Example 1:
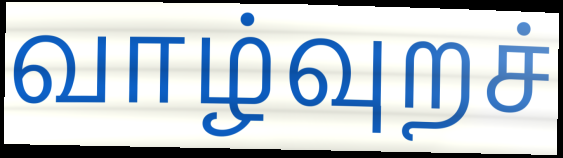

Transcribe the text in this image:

வாழ்வுறச்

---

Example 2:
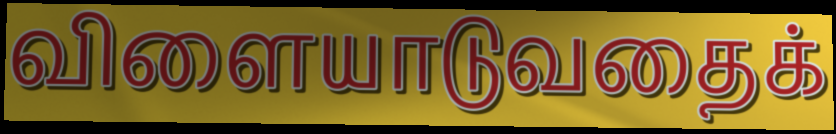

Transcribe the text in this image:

விளையாடுவதைக்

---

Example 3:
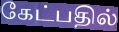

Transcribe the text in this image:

கேட்பதில்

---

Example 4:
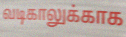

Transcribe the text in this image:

வடிகாலுக்காக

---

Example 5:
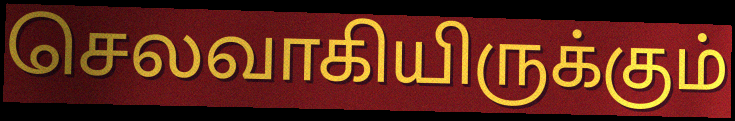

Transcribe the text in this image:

செலவாகியிருக்கும்